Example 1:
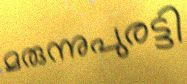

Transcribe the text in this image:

മരുന്നുപുരട്ടി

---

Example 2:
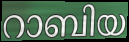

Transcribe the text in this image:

റാബിയ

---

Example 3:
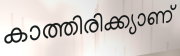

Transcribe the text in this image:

കാത്തിരിക്ക്യാണ്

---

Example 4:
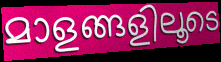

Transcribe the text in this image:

മാളങ്ങളിലൂടെ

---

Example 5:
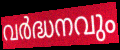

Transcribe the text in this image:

വർദ്ധനവും